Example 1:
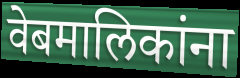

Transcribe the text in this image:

वेबमालिकांना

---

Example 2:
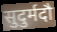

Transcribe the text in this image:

सुदुर्मदौ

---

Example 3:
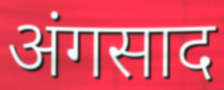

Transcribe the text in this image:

अंगसाद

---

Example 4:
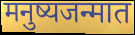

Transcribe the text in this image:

मनुष्यजन्मात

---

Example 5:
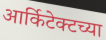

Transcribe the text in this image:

आर्किटेक्टच्या